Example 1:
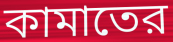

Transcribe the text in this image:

কামাতের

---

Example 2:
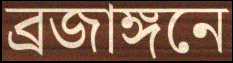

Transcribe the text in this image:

ব্রজাঙ্গনে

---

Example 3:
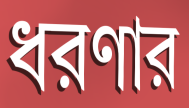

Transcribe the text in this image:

ধরণার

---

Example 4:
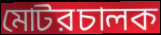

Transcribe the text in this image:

মোটরচালক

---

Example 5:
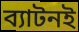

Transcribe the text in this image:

ব্যাটনই